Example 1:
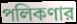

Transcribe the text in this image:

পলিকণার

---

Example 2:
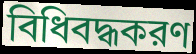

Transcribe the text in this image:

বিধিবদ্ধকরণ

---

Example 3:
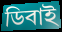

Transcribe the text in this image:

ডিবাই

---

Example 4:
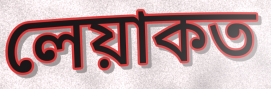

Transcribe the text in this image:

লেয়াকত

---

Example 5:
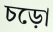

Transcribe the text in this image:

চড়ো